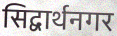
सिद्वार्थनगर